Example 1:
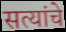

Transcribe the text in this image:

सत्यांचे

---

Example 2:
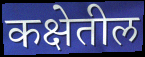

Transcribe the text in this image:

कक्षेतील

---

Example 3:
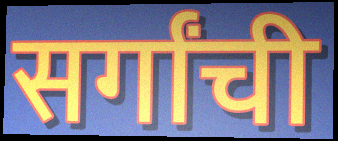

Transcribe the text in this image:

सर्गांची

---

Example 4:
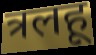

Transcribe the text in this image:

त्रलहू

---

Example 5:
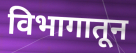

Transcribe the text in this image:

विभागातून